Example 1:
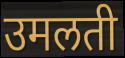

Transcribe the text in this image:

उमलती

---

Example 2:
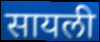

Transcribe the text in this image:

सायली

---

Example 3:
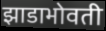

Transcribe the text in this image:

झाडाभोवती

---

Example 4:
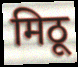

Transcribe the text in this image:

मिठू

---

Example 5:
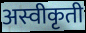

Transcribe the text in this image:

अस्वीकृती